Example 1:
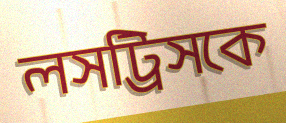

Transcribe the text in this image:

লসট্রিসকে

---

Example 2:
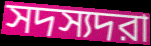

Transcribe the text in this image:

সদস্যদরা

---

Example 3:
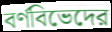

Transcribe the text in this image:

বর্ণবিভেদের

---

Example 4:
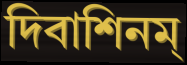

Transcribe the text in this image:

দিবাশিনম্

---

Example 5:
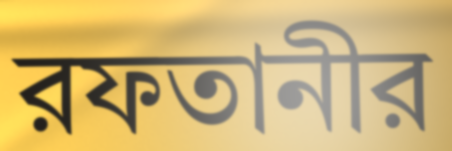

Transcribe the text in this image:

রফতানীর